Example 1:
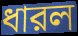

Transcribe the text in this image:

ধারল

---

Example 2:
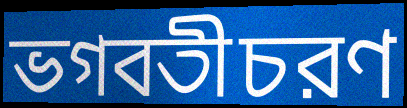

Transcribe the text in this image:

ভগবতীচরণ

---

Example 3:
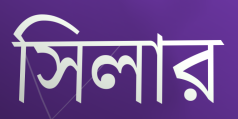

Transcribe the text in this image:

সিলার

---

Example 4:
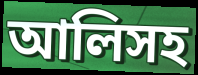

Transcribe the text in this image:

আলিসহ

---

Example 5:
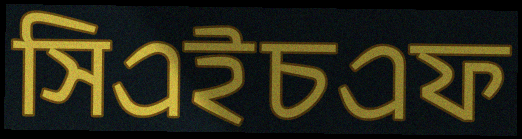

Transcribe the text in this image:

সিএইচএফ